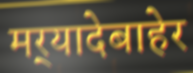
मर्यादेबाहेर